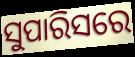
ସୁପାରିସରେ